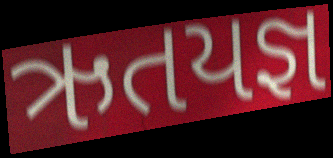
ઋતયજ્ઞ